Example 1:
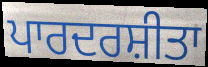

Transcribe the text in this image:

ਪਾਰਦਰਸ਼ੀਤਾ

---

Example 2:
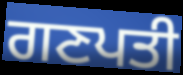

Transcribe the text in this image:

ਗਣਪਤੀ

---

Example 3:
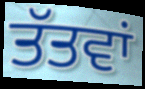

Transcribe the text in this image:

ਤੱਤਵਾਂ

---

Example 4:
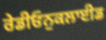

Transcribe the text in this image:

ਰੇਡੀਓਨੁਕਲਾਈਡ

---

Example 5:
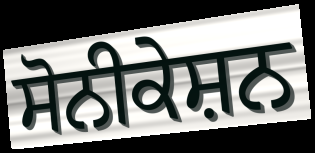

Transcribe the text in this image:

ਸੋਨੀਕੇਸ਼ਨ